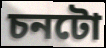
চনটো